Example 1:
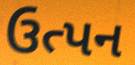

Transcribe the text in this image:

ઉત્પન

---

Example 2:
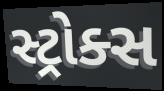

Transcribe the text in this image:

સ્ટ્રોક્સ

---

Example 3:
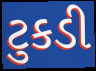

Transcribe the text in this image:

ટુકડી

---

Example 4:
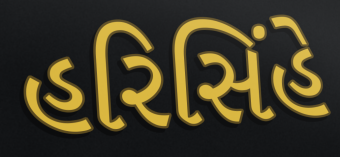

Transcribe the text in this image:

હરિસિંહે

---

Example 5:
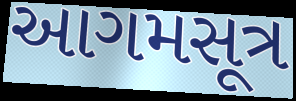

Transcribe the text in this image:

આગમસૂત્ર